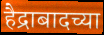
हैद्राबादच्या